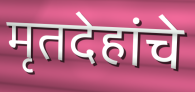
मृतदेहांचे